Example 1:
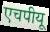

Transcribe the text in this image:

एचपीयू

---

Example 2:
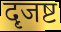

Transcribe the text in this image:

दृजष्ट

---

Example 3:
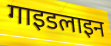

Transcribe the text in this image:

गाइडलाइन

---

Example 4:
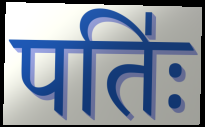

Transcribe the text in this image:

पतिः॑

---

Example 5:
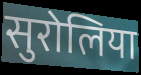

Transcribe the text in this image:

सुरोलिया